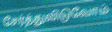
சேர்த்துவிடுவோம்